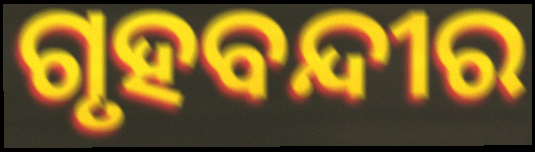
ଗୃହବନ୍ଦୀର